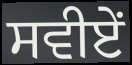
ਸਵੀਏਂ